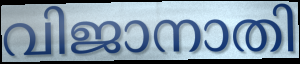
വിജാനാതി